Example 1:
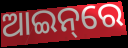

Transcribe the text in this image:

ଆଇନ୍‌ରେ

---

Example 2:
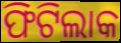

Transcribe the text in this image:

ଫିଟିଲାକ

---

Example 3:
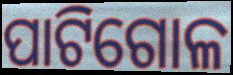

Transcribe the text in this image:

ପାଟିଗୋଳ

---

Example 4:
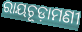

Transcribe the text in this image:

ରାୟଚୂଡ଼ାମଣୀ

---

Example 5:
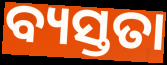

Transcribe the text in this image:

ବ୍ୟସ୍ତତା